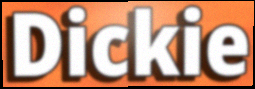
Dickie